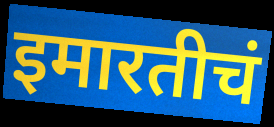
इमारतीचं